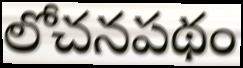
లోచనపథం